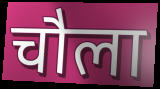
चौला